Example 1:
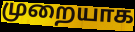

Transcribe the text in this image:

முறையாக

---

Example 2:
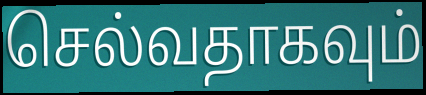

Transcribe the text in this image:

செல்வதாகவும்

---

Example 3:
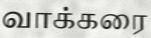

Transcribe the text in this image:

வாக்கரை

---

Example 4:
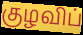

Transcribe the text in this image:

குழவிப்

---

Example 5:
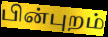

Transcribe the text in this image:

பின்புறம்